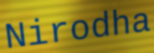
Nirodha